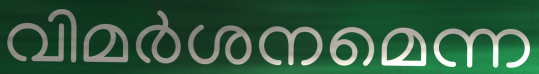
വിമർശനമെന്ന